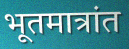
भूतमात्रांत